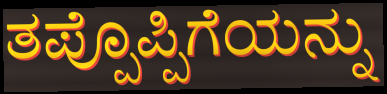
ತಪ್ಪೊಪ್ಪಿಗೆಯನ್ನು